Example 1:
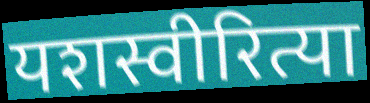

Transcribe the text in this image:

यशस्वीरित्या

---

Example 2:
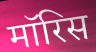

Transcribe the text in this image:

मॉरिस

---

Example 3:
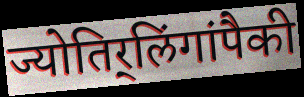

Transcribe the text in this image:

ज्योतिर्लिंगांपैकी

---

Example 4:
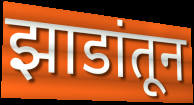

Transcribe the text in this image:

झाडांतून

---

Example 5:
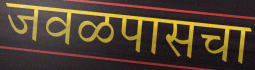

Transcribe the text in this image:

जवळपासचा